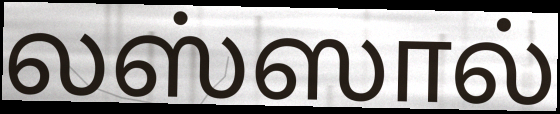
லஸ்ஸால்